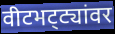
वीटभट्ट्यांवर